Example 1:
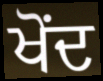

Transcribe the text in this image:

ਖੋਂਦ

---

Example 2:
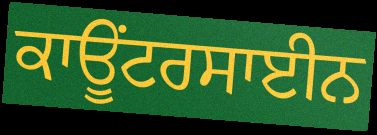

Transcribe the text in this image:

ਕਾਊਂਟਰਸਾਈਨ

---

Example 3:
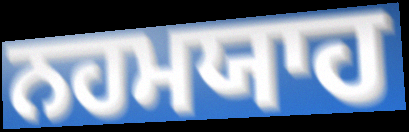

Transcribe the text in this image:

ਨਹਮਯਾਹ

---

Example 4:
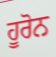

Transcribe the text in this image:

ਹੂਰੋਨ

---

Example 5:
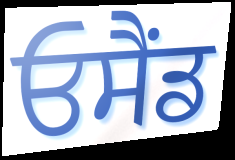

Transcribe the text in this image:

ਓਸੈਂਡ